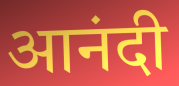
आनंदी